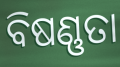
ବିଷଣ୍ଣତା